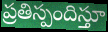
ప్రతిస్పందిస్తూ